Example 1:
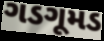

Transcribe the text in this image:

ગડગૂમડ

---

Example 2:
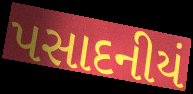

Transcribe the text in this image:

પસાદનીયં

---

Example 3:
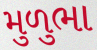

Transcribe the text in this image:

મુળુભા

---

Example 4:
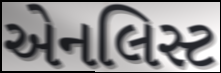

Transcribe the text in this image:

એનલિસ્ટ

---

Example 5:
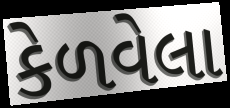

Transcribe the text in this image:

કેળવેલા